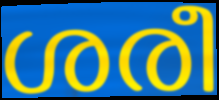
ശരീ